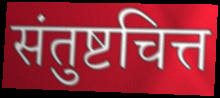
संतुष्टचित्त